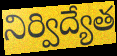
నిర్విద్యేత